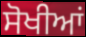
ਸੋਖੀਆਂ